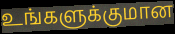
உங்களுக்குமான